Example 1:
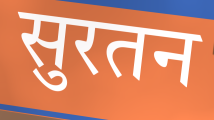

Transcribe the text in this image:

सुरतन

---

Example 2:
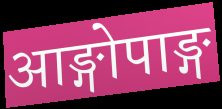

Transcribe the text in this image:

आङ्गोपाङ्ग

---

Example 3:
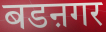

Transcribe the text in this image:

बडऩगर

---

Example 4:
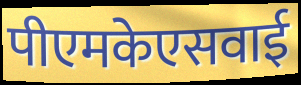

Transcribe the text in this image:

पीएमकेएसवाई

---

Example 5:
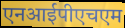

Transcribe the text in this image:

एनआईपीएचएम